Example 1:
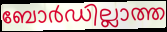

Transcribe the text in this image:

ബോർഡില്ലാത്ത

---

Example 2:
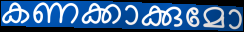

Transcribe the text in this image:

കണക്കാക്കുമോ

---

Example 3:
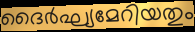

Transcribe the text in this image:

ദൈർഘ്യമേറിയതും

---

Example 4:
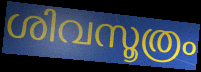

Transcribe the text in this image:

ശിവസൂത്രം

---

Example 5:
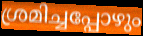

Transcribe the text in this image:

ശ്രമിച്ചപ്പോഴും